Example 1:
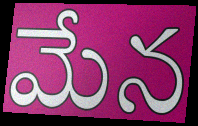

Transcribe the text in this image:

మేన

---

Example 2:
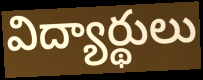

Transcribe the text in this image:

విద్యార్థులు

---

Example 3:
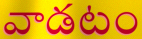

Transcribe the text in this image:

వాడటం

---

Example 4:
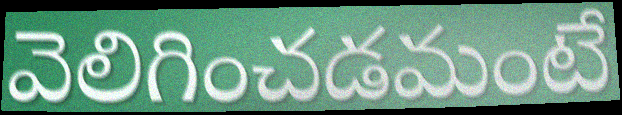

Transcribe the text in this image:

వెలిగించడమంటే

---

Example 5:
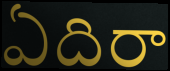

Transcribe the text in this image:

ఏదిరా